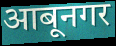
आबूनगर